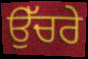
ਉੱਚਰੇ